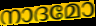
നാദമോ